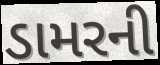
ડામરની